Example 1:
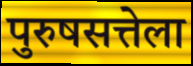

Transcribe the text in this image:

पुरुषसत्तेला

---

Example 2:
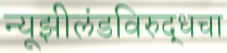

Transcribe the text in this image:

न्यूझीलंडविरुद्धचा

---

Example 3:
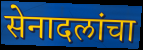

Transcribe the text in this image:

सेनादलांचा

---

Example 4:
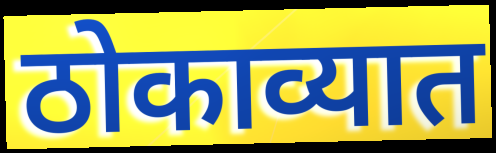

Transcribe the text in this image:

ठोकाव्यात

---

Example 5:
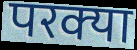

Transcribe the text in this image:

परक्या